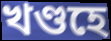
খণ্ডহে